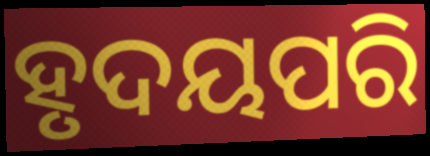
ହୃଦୟପରି